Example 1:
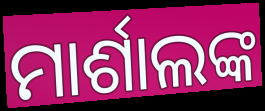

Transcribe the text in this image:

ମାର୍ଶାଲଙ୍କ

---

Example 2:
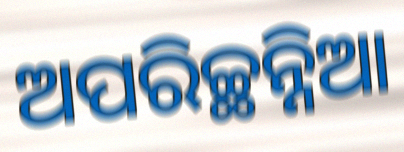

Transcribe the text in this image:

ଅପରିଚ୍ଛନ୍ନିଆ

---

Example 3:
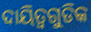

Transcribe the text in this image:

ଦାୟିତ୍ୱଗୁଡିକ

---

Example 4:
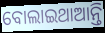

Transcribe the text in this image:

ବୋଲାଇଥାଆନ୍ତି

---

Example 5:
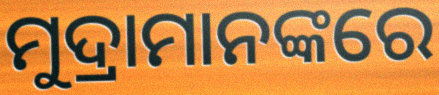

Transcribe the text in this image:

ମୁଦ୍ରାମାନଙ୍କରେ